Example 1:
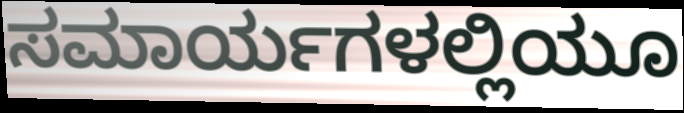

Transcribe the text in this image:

ಸಮಾರ್ಯಗಳಲ್ಲಿಯೂ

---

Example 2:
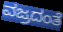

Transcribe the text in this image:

ವಜ್ರದಂತೆ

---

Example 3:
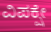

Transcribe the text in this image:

ವಿಪಕ್ಷೇ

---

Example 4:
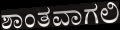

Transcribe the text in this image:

ಶಾಂತವಾಗಲಿ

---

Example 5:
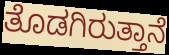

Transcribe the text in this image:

ತೊಡಗಿರುತ್ತಾನೆ